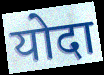
योदा